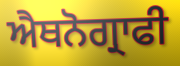
ਐਥਨੋਗ੍ਰਾਫੀ